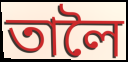
তালৈ